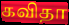
கவிதா